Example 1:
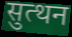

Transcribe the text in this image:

सुत्थन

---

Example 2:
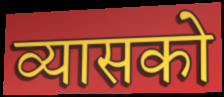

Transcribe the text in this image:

व्यासको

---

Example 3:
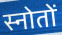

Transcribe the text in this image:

स्नोतों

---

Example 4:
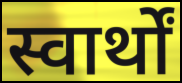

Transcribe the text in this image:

स्वार्थों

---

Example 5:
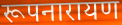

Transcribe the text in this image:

रूपनारायण